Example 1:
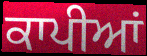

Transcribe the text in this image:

ਕਾਪੀਆਂ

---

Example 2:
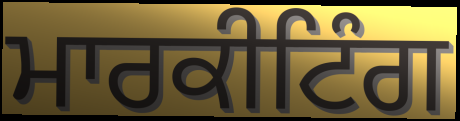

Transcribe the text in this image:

ਮਾਰਕੀਟਿੰਗ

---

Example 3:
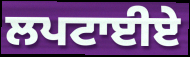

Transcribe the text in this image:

ਲਪਟਾਈਏ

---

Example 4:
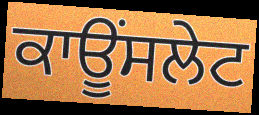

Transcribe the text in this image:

ਕਾਊਂਸਲੇਟ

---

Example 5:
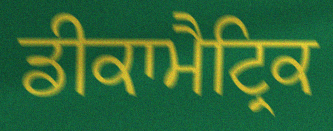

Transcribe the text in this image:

ਡੀਕਾਮੈਟ੍ਰਿਕ